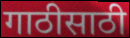
गाठीसाठी